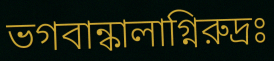
ভগবান্কালাগ্নিরুদ্রঃ